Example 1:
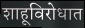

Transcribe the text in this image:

शाहूविरोधात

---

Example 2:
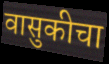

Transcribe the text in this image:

वासुकीचा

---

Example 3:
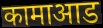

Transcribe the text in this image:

कामाआड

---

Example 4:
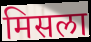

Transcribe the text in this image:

मिसला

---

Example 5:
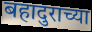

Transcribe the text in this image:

बहादुराच्या